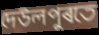
দেউলপুৰতে